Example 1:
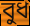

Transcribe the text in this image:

বুধ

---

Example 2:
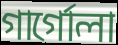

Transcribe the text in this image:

গাৰ্গোলা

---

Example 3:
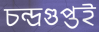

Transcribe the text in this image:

চন্দ্ৰগুপ্তই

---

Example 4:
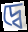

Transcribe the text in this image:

দ্বে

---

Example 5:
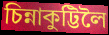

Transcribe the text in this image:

চিন্নাকুট্টিলৈ